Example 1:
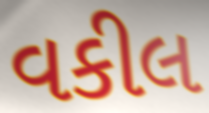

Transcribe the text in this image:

વકીલ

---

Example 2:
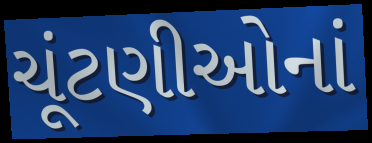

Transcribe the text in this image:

ચૂંટણીઓનાં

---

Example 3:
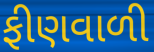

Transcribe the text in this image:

ફીણવાળી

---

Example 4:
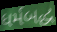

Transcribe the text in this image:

ધર્મબદ્ધ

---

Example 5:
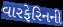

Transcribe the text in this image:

વારફેરિનની